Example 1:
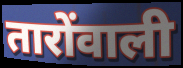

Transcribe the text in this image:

तारोंवाली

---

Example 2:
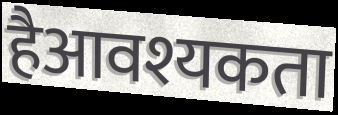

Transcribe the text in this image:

हैआवश्यकता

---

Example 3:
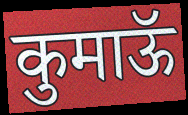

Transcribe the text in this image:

कुमाऊॅ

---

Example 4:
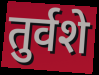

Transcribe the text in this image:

तुर्वशे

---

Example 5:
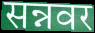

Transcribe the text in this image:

सन्नवर